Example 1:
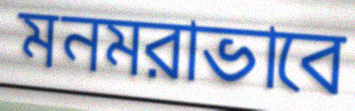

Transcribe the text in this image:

মনমরাভাবে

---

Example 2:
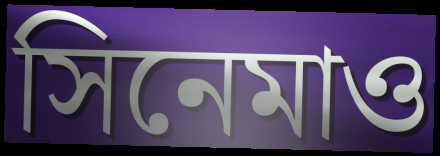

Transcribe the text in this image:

সিনেমাও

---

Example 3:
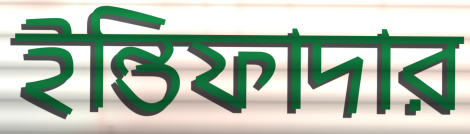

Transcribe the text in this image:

ইন্তিফাদার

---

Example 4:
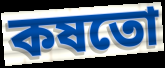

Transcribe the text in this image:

কষতো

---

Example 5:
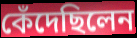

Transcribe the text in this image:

কেঁদেছিলেন